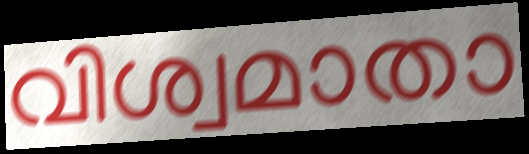
വിശ്വമാതാ